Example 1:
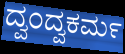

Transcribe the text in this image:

ದ್ವಂದ್ವಕರ್ಮ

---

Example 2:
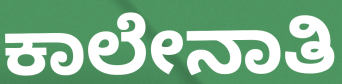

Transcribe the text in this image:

ಕಾಲೇನಾತಿ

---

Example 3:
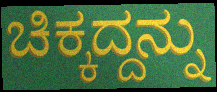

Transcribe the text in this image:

ಚಿಕ್ಕದ್ದನ್ನು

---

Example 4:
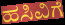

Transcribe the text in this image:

ಹಸಿವಿಗೆ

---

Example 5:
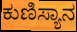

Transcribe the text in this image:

ಕುಣಿಸ್ಯಾನ